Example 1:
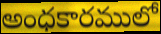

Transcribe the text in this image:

అంధకారములో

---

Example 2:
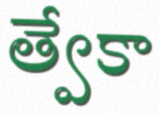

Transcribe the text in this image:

త్వేకా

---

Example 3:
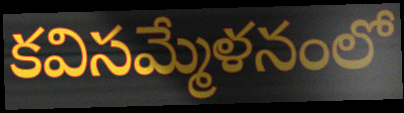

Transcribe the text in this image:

కవిసమ్మేళనంలో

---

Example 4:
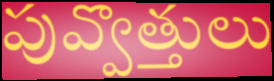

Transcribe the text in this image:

పువ్వొత్తులు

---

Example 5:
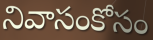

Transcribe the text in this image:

నివాసంకోసం